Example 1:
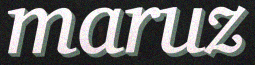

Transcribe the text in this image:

maruz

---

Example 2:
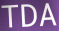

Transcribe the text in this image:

TDA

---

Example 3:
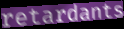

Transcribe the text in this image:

retardants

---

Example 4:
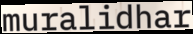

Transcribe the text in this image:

muralidhar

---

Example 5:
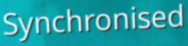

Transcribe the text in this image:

Synchronised